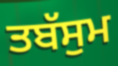
ਤਬੱਸੁਮ